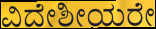
ವಿದೇಶೀಯರೇ